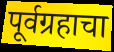
पूर्वग्रहाचा